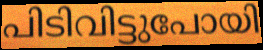
പിടിവിട്ടുപോയി